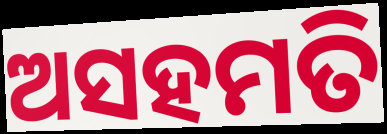
ଅସହମତି